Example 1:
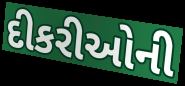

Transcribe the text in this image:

દીકરીઓની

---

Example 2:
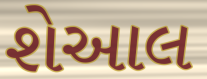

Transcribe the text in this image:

શેઆલ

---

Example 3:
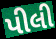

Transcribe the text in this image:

પીલી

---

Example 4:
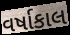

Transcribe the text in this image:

વર્ષાકાલ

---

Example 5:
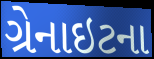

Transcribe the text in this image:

ગ્રેનાઇટના